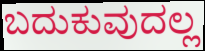
ಬದುಕುವುದಲ್ಲ